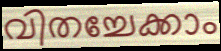
വിതച്ചേക്കാം